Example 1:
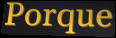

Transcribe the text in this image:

Porque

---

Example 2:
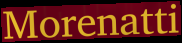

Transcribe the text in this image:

Morenatti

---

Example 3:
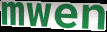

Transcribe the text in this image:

mwen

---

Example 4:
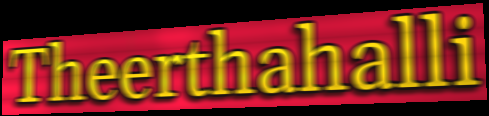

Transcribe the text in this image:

Theerthahalli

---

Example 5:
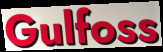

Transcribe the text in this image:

Gulfoss